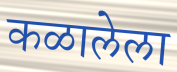
कळालेला